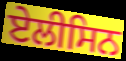
ਏਲੀਸਿਨ